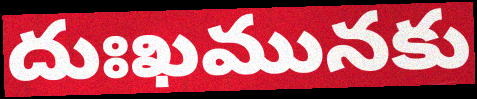
దుఃఖమునకు